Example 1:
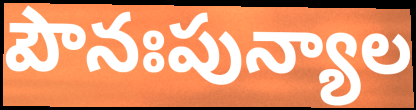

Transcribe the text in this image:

పౌనఃపున్యాల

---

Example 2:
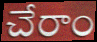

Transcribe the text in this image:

చేరాం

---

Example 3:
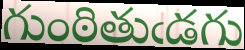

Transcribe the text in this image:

గుంఠితుఁడగు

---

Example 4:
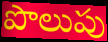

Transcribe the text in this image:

పొలుపు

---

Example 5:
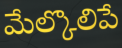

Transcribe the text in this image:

మేల్కొలిపే